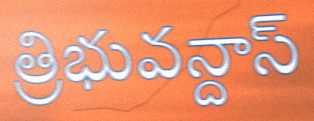
త్రిభువన్దాస్